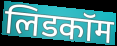
लिडकॉम